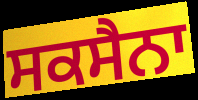
ਸਕਸੈਨਾ